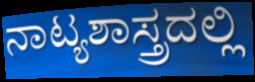
ನಾಟ್ಯಶಾಸ್ತ್ರದಲ್ಲಿ